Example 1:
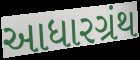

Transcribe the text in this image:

આધારગ્રંથ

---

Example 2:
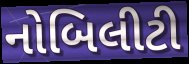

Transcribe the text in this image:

નોબિલીટી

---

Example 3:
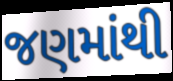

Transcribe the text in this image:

જણમાંથી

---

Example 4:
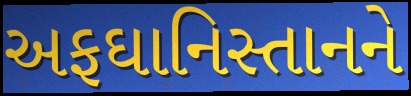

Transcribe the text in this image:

અફઘાનિસ્તાનને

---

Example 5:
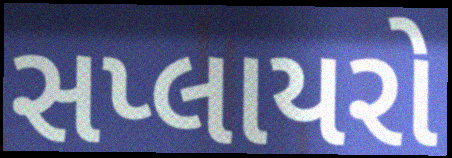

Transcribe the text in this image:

સપ્લાયરો